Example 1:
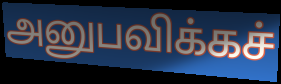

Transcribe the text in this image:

அனுபவிக்கச்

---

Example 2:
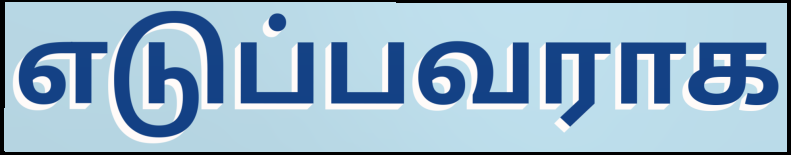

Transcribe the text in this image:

எடுப்பவராக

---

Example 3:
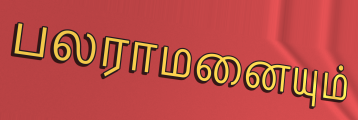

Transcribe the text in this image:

பலராமனையும்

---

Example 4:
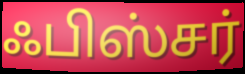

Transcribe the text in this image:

ஃபிஸ்சர்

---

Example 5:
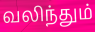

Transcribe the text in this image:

வலிந்தும்